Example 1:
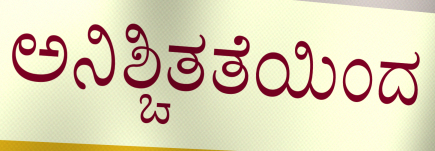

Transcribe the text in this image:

ಅನಿಶ್ಚಿತತೆಯಿಂದ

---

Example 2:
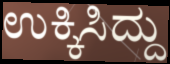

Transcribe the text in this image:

ಉಕ್ಕಿಸಿದ್ದು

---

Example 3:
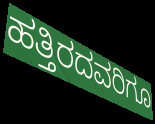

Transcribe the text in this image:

ಹತ್ತಿರದವರಿಗೂ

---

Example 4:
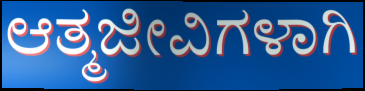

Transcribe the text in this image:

ಆತ್ಮಜೀವಿಗಳಾಗಿ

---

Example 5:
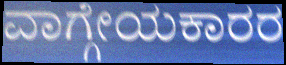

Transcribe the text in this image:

ವಾಗ್ಗೇಯಕಾರರ